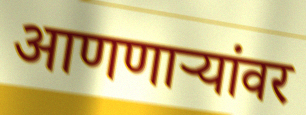
आणणाऱ्यांवर